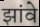
झांवे